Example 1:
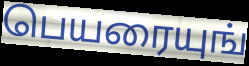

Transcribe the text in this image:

பெயரையுங்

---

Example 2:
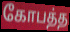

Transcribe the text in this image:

கோபத்த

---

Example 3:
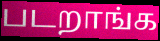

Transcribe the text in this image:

படறாங்க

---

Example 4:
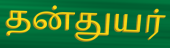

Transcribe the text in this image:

தன்துயர்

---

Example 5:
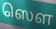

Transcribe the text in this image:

ஸௌ